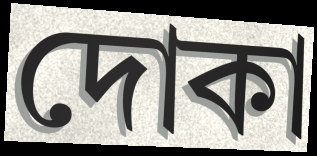
দোকা